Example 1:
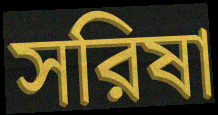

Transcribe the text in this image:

সরিষা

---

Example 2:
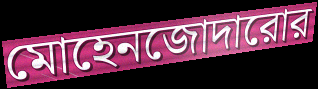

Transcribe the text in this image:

মোহেনজোদারোর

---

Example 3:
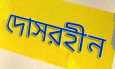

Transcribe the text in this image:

দোসরহীন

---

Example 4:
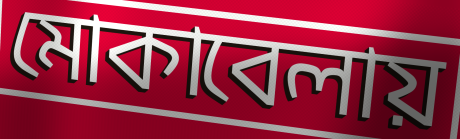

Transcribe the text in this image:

মোকাবেলায়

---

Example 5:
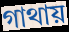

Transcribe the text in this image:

গাথায়